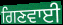
ਗਿਣਵਾਈ